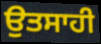
ਉਤਸਾਹੀ